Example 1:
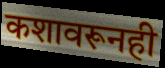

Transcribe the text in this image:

कशावरूनही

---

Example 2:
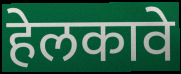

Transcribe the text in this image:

हेलकावे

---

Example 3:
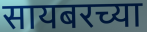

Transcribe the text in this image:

सायबरच्या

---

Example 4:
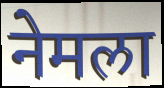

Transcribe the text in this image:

नेमला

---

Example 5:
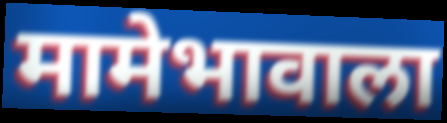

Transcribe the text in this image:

मामेभावाला